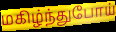
மகிழ்ந்துபோய்